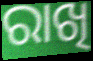
ରାଖି